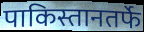
पाकिस्तानतर्फे